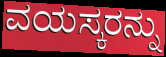
ವಯಸ್ಕರನ್ನು